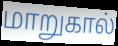
மாறுகால்